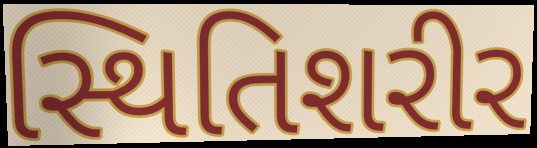
સ્થિતિશરીર